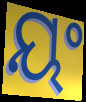
ୟଂ